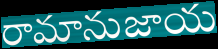
రామానుజాయ